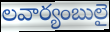
లవార్యంబులై